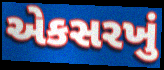
એકસરખું